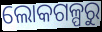
ଲୋକଗଳ୍ପରୁ